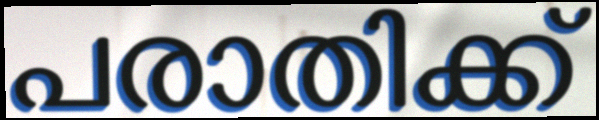
പരാതിക്ക്